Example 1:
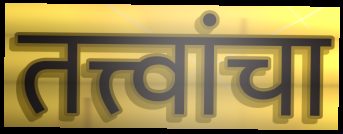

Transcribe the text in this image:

तत्त्वांचा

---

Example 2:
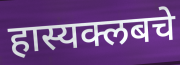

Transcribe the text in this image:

हास्यक्लबचे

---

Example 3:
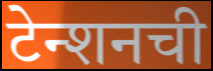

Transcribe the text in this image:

टेन्शनची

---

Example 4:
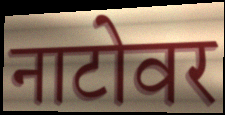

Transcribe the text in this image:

नाटोवर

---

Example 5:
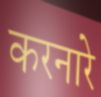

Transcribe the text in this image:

करनारे